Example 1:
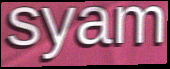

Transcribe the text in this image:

syam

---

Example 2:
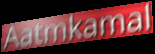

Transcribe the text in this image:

Aatmkamal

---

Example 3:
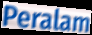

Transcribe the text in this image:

Peralam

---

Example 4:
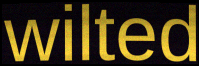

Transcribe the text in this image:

wilted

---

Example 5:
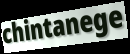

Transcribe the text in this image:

chintanege